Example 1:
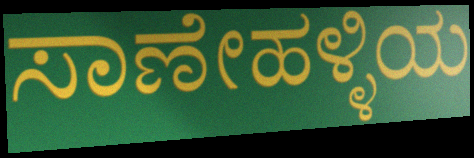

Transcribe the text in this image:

ಸಾಣೇಹಳ್ಳಿಯ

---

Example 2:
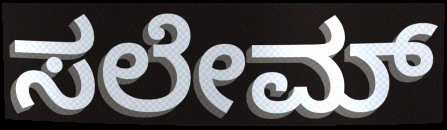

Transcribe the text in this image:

ಸಲೇಮ್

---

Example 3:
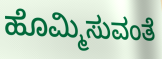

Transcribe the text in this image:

ಹೊಮ್ಮಿಸುವಂತೆ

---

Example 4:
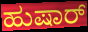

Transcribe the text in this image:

ಹುಷಾರ್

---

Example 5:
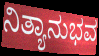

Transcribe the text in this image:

ನಿತ್ಯಾನುಭವ